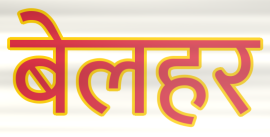
बेलहर